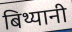
बिथ्यानी